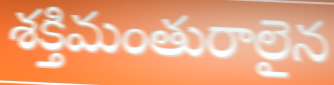
శక్తిమంతురాలైన